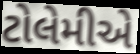
ટોલેમીએ